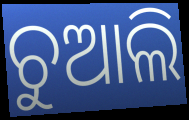
ଚୁଆଲି